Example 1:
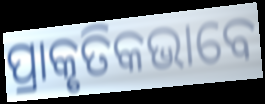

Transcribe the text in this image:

ପ୍ରାକୃତିକଭାବେ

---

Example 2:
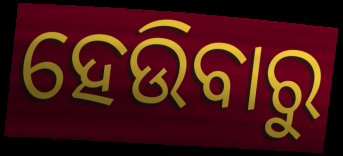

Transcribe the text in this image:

ହେଉିବାରୁ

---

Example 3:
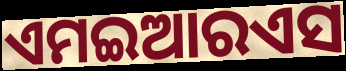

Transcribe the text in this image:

ଏମଇଆରଏସ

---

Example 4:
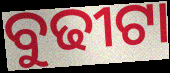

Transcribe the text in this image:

ବୁଢୀଟା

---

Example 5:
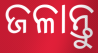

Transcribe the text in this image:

ଜଳାନ୍ତୁ